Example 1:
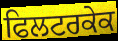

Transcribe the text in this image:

ਫਿਲਟਰਕੇਕ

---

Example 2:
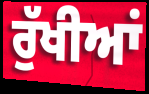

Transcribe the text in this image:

ਰੁੱਖੀਆਂ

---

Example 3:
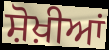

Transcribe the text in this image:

ਸ਼ੋਖ਼ੀਆਂ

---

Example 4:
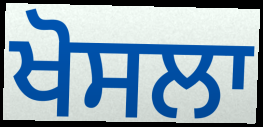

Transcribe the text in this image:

ਖੋਸਲਾ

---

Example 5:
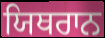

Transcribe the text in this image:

ਯਿਥਰਾਨ